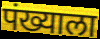
पंख्याला